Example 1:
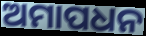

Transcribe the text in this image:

ଅମାପଧନ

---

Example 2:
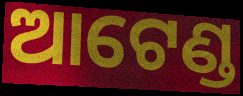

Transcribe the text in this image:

ଆଟେଣ୍ଡ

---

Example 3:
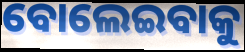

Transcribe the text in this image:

ବୋଲେଇବାକୁ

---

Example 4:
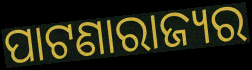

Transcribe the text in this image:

ପାଟଣାରାଜ୍ୟର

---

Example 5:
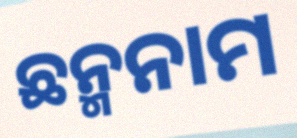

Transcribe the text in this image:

ଛନ୍ମନାମ